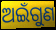
ଅଇଁଗୁଣ